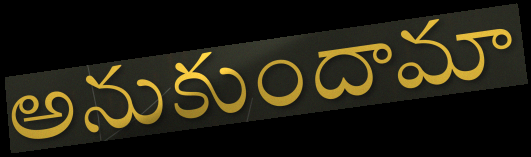
అనుకుందామా